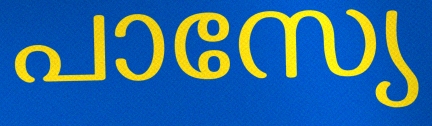
പാസ്യേ